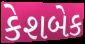
કેશબેક